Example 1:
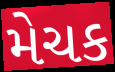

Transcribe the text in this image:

મેચક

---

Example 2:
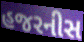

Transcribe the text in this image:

હજરનીસ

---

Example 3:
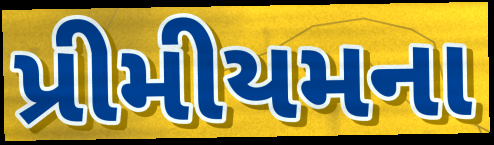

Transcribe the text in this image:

પ્રીમીયમના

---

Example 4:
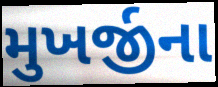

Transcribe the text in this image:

મુખર્જીના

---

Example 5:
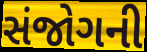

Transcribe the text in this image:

સંજોગની